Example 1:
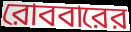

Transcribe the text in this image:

রোববারের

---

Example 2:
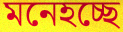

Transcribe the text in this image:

মনেহচ্ছে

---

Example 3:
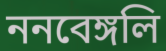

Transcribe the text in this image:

ননবেঙ্গলি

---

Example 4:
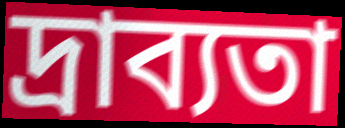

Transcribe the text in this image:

দ্রাব্যতা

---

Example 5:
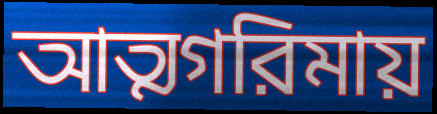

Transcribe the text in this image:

আত্মগরিমায়